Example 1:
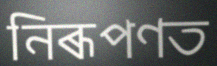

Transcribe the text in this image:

নিৰূপণত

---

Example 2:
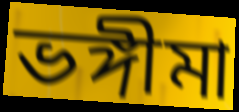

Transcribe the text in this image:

ভঙ্গীমা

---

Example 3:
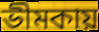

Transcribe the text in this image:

ভীমকায়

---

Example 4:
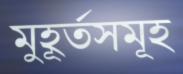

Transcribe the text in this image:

মুহূৰ্তসমূহ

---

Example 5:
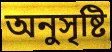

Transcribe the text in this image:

অনুসৃষ্টি